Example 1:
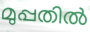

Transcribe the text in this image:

മുപ്പതിൽ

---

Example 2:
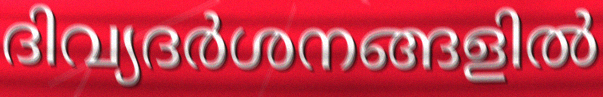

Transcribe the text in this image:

ദിവ്യദർശനങ്ങളിൽ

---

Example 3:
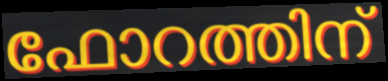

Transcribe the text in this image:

ഫോറത്തിന്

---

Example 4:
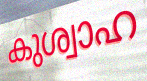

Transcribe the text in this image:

കുശ്വാഹ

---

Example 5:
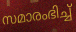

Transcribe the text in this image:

സമാരംഭിച്ച്